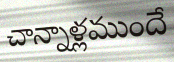
చాన్నాళ్లముందే